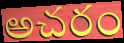
అచరం